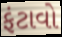
ફંટાવો